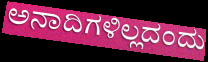
ಅನಾದಿಗಳಿಲ್ಲದಂದು